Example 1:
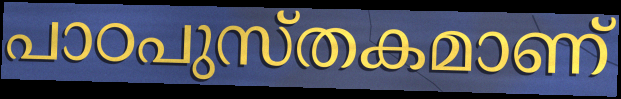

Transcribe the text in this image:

പാഠപുസ്തകമാണ്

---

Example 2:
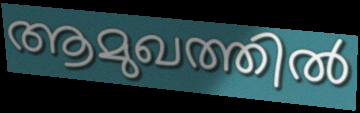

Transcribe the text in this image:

ആമുഖത്തിൽ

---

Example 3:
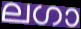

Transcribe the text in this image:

ലഗാ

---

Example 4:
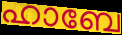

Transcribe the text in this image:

ഹാബേ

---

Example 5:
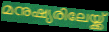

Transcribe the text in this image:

മനുഷ്യരിലേയ്ക്ക്